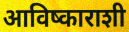
आविष्काराशी